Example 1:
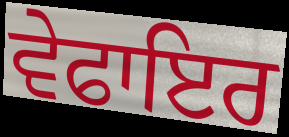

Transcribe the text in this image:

ਵੇਫਾਇਰ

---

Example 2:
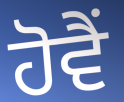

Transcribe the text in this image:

ਹੋਵੈਂ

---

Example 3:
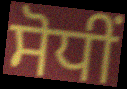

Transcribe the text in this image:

ਸੋਧੀਂ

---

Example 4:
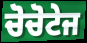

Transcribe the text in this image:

ਚੋਚੋਟੇਜ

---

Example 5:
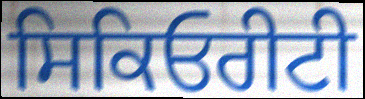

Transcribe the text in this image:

ਸਿਕਿਓਰੀਟੀ